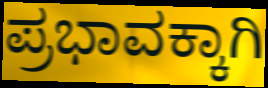
ಪ್ರಭಾವಕ್ಕಾಗಿ